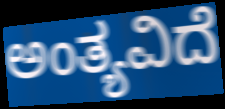
ಅಂತ್ಯವಿದೆ